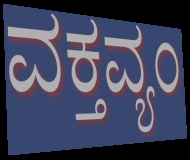
ವಕ್ತವ್ಯಂ